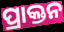
ପ୍ରାକ୍ତନ